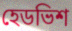
হেডভিশ